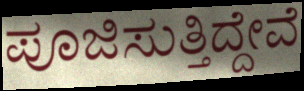
ಪೂಜಿಸುತ್ತಿದ್ದೇವೆ